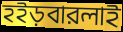
হইড়বারলাই